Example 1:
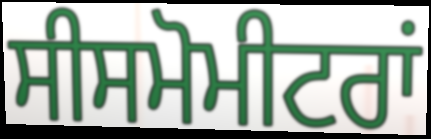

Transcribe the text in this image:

ਸੀਸਮੋਮੀਟਰਾਂ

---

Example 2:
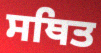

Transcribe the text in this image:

ਸਥਿਤ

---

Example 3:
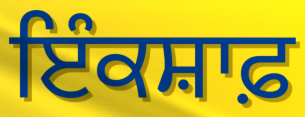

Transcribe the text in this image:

ਇੰਕਸ਼ਾਫ਼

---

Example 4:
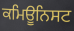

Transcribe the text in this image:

ਕਮਿਊਨਿਸਟ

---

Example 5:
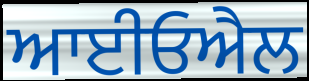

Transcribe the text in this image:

ਆਈਓਐਲ